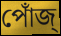
পোঁজ্